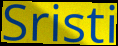
Sristi